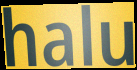
halu